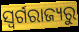
ସ୍ବର୍ଗରାଜ୍ୟରୁ